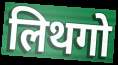
लिथगो